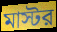
মাস্টর